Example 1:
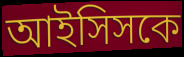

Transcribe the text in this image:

আইসিসকে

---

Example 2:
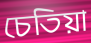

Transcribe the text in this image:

চেতিয়া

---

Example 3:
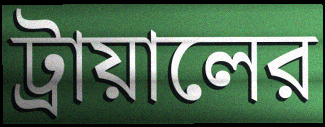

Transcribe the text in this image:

ট্রায়ালের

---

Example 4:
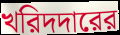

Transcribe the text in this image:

খরিদদারের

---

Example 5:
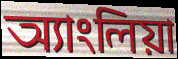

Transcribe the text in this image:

অ্যাংলিয়া